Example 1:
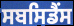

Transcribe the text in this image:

ਸਬਸਿਡੈਂਸ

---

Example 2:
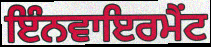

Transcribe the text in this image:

ਇੰਨਵਾਇਰਮੈਂਟ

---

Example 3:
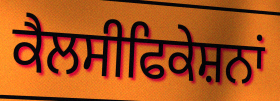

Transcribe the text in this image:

ਕੈਲਸੀਫਿਕੇਸ਼ਨਾਂ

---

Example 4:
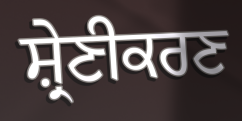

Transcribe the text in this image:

ਸ਼੍ਰੇਣੀਕਰਣ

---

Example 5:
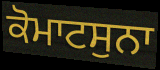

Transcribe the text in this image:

ਕੋਮਾਟਸੁਨਾ